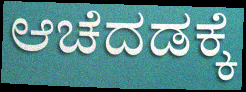
ಆಚೆದಡಕ್ಕೆ